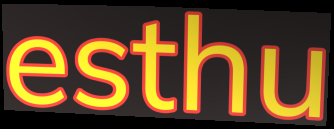
esthu